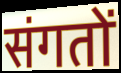
संगतों